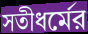
সতীধর্মের